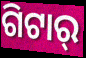
ଗିଟାର୍